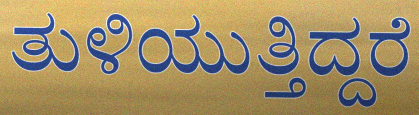
ತುಳಿಯುತ್ತಿದ್ದರೆ